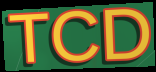
TCD